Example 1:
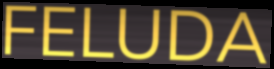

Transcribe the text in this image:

FELUDA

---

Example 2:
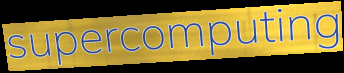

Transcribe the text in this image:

supercomputing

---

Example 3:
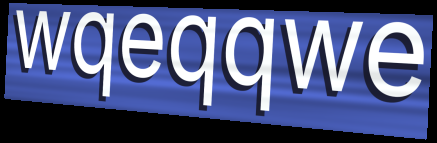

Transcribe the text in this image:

wqeqqwe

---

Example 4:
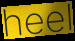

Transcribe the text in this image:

heel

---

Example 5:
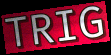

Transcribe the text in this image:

TRIG